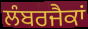
ਲੰਬਰਜੈਕਾਂ